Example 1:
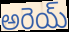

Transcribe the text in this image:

అరెయ్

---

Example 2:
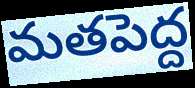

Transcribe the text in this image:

మతపెద్ద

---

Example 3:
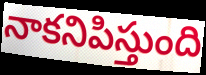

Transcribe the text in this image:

నాకనిపిస్తుంది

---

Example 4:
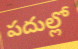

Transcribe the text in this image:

పదుల్లో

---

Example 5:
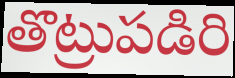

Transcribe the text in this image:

తొట్రుపడిరి